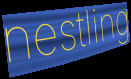
nestling